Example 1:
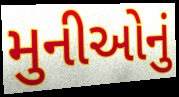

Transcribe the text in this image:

મુનીઓનું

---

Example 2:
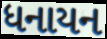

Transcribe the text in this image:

ધનાયન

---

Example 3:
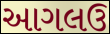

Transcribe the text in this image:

આગલઉ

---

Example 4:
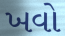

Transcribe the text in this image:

ખવો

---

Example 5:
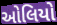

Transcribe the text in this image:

ઓલિયો